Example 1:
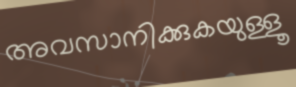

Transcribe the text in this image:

അവസാനിക്കുകയുള്ളൂ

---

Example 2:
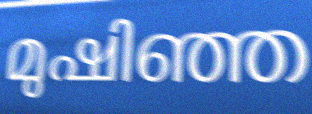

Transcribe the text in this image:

മുഷിഞ്ഞ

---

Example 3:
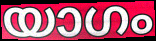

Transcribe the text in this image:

യാഗം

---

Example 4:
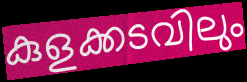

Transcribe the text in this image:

കുളക്കടവിലും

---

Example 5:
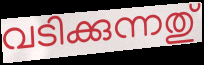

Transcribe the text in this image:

വടിക്കുന്നതു്